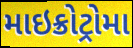
માઇક્રોટ્રોમા